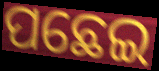
ପଛେଇ